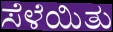
ಸೆಳೆಯಿತು